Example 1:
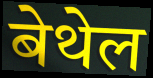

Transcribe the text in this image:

बेथेल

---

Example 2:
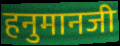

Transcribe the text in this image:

हनुमानजी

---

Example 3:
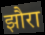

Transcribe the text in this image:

झौरा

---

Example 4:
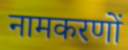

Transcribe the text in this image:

नामकरणों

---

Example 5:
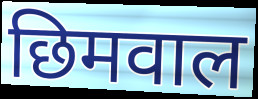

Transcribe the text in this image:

छिमवाल